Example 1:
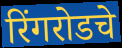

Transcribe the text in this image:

रिंगरोडचे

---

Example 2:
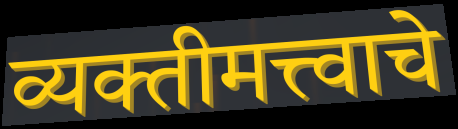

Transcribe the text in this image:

व्यक्तीमत्त्वाचे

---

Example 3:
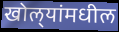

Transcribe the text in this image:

खोल्यांमधील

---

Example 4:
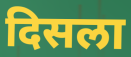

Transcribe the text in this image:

दिसला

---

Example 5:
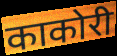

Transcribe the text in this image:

काकोरी